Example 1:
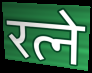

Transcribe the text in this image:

रत्ने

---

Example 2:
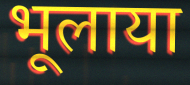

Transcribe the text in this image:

भूलाया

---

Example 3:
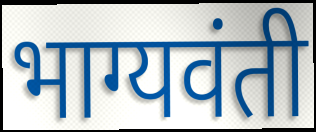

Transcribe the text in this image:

भाग्यवंती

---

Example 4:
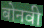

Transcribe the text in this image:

बोनवी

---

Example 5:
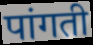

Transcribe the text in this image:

पांगती